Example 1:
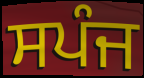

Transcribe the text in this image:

ਸਪੰਜ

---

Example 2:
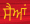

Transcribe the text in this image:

ਸੈਆਂ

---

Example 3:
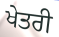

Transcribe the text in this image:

ਖੇਤਰੀ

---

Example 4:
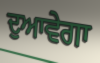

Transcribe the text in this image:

ਦੁਆਵੇਗਾ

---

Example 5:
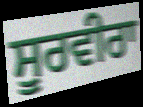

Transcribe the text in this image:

ਸੂਰਵੀਰਾ